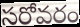
సరోవరం